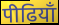
पीढियाँ